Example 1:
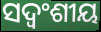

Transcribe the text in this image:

ସଦ୍ବଂଶୀୟ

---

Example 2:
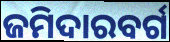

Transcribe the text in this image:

ଜମିଦାରବର୍ଗ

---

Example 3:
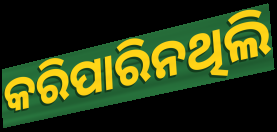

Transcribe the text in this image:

କରିପାରିନଥିଲି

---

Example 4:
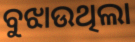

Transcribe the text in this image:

ବୁଝାଉଥିଲା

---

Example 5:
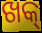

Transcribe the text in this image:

ଖକ୍